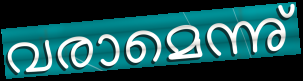
വരാമെന്നു്